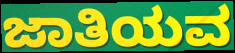
ಜಾತಿಯವ